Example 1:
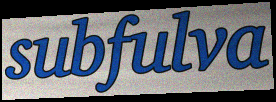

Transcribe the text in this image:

subfulva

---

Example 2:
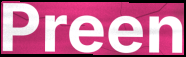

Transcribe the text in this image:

Preen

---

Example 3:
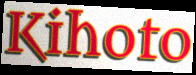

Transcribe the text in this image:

Kihoto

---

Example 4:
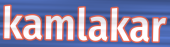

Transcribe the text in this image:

kamlakar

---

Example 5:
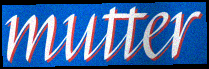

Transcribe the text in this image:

mutter